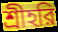
শ্রীহরি